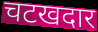
चटखदार